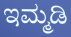
ಇಮ್ಮಡಿ